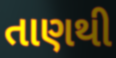
તાણથી